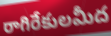
రాగిరేకులమీద